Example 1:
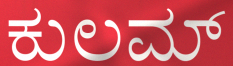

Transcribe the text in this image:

ಕುಲಮ್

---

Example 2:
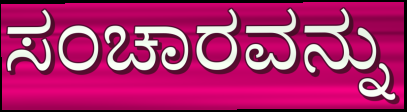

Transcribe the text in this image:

ಸಂಚಾರವನ್ನು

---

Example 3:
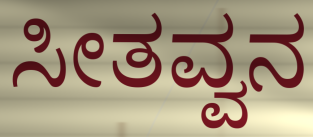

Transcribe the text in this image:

ಸೀತವ್ವನ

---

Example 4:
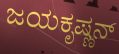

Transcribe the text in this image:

ಜಯಕೃಷ್ಣನ್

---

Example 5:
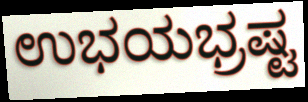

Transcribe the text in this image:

ಉಭಯಭ್ರಷ್ಟ